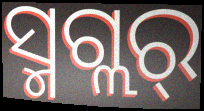
ସ୍ମଗ୍ଲର୍